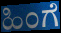
ಹಿಂಗೆ